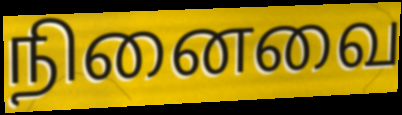
நினைவை